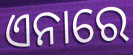
ଏନାରେ